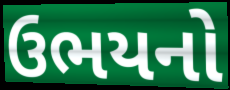
ઉભયનો